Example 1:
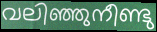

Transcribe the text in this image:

വലിഞ്ഞുനീണ്ടു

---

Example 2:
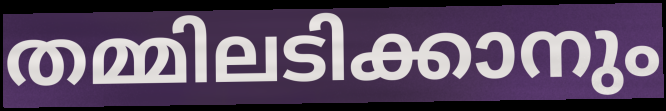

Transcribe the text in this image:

തമ്മിലടിക്കാനും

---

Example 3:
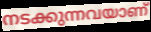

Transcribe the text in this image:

നടക്കുന്നവയാണ്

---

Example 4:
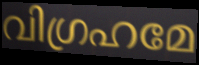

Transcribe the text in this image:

വിഗ്രഹമേ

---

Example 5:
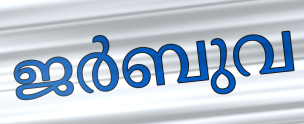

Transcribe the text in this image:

ജർബുവ